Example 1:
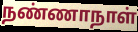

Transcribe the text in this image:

நண்ணாநாள்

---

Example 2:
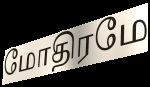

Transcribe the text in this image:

மோதிரமே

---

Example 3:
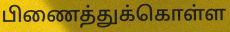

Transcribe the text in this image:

பிணைத்துக்கொள்ள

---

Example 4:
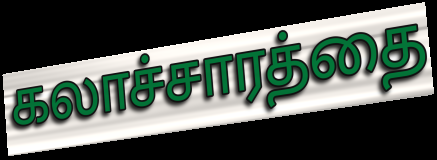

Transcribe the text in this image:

கலாச்சாரத்தை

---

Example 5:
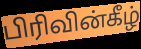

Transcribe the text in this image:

பிரிவின்கீழ்